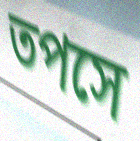
তপসে